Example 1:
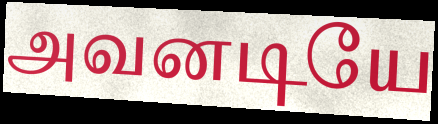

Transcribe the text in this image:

அவனடியே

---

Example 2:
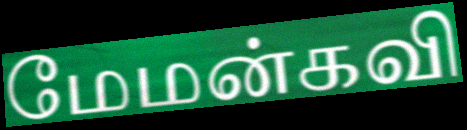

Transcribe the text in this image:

மேமன்கவி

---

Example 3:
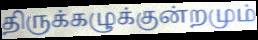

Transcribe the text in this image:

திருக்கழுக்குன்றமும்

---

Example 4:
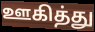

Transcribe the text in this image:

ஊகித்து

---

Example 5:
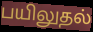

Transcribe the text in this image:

பயிலுதல்